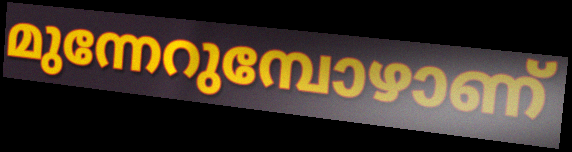
മുന്നേറുമ്പോഴാണ്